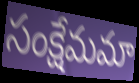
సంక్షేమమా